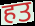
हउ